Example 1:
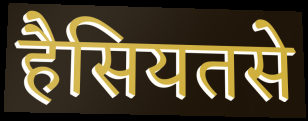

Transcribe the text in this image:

हैसियतसे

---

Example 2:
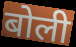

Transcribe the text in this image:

बोली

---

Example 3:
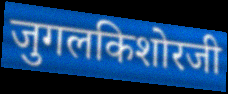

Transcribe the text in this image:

जुगलकिशोरजी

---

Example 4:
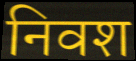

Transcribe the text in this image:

निवश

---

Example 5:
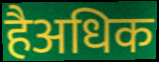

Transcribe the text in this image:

हैअधिक